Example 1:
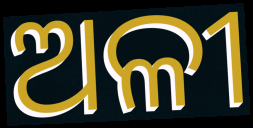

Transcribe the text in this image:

ଅଳୀ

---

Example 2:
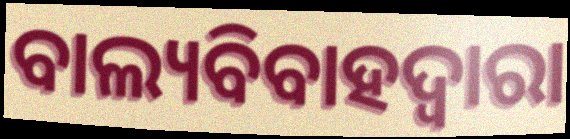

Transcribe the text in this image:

ବାଲ୍ୟବିବାହଦ୍ୱାରା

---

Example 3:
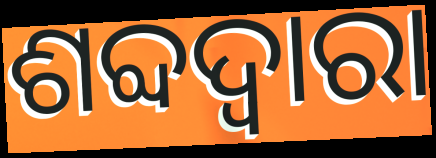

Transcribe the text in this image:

ଶବ୍ଦଦ୍ୱାରା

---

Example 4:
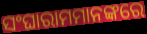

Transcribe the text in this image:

ସଂଘାରାମମାନଙ୍କରେ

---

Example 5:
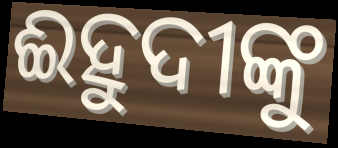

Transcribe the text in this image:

ଈହୁଦୀଙ୍କୁ